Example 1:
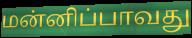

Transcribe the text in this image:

மன்னிப்பாவது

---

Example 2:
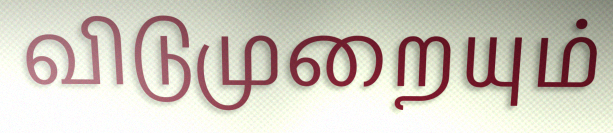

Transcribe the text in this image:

விடுமுறையும்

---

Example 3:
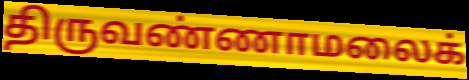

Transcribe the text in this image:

திருவண்ணாமலைக்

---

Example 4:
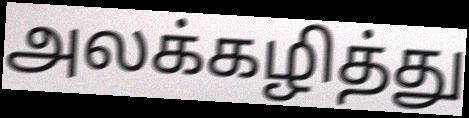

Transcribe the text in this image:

அலக்கழித்து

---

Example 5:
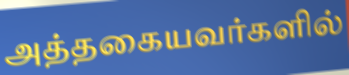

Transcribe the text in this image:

அத்தகையவர்களில்